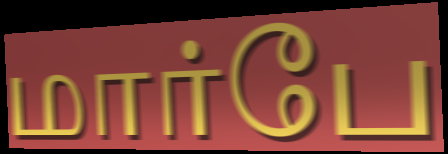
மார்பே